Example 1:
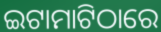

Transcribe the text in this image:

ଇଟାମାଟିଠାରେ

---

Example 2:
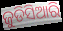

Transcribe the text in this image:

ଜୁଡିସିଆରି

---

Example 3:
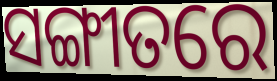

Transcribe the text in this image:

ସଙ୍ଗୀତରେ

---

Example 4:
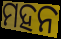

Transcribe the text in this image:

ମହନ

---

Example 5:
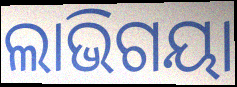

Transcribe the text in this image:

ଲାଭିଗୟା